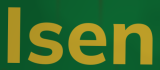
Isen